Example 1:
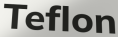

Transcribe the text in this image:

Teflon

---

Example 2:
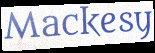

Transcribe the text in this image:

Mackesy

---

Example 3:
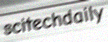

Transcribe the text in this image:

scitechdaily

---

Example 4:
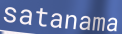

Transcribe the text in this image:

satanama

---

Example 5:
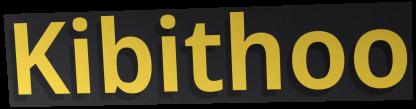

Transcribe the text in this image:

Kibithoo